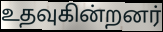
உதவுகின்றனர்